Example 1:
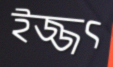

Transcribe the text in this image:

ইজ্জৎ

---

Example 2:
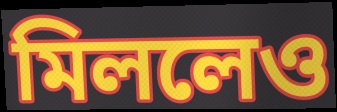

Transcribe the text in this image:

মিললেও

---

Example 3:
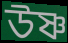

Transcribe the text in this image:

উষ্ণ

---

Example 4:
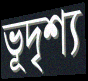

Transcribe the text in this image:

ভূদৃশ্য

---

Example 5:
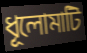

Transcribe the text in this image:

ধূলোমাটি